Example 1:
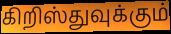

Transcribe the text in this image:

கிறிஸ்துவுக்கும்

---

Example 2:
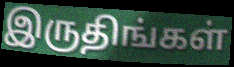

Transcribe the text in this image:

இருதிங்கள்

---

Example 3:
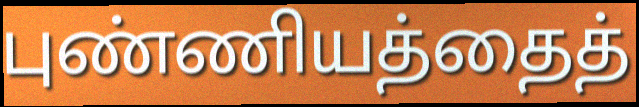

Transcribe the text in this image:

புண்ணியத்தைத்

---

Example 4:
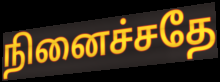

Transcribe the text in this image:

நினைச்சதே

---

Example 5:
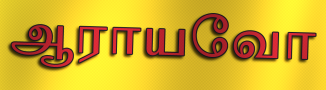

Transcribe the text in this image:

ஆராயவோ